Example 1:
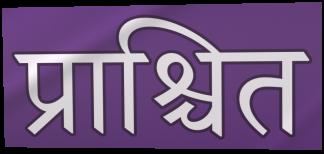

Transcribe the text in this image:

प्राश्चित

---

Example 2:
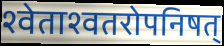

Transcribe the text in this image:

श्वेताश्वतरोपनिषत्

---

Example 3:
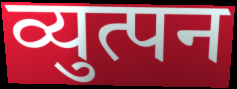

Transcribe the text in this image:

व्युत्पन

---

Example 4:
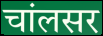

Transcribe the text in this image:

चांलसर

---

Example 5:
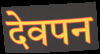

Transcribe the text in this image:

देवपन